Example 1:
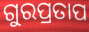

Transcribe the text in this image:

ଗୁରପ୍ରତାପ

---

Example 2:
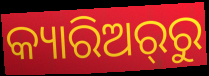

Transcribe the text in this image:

କ୍ୟାରିଅର୍‌ରୁ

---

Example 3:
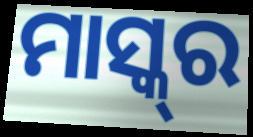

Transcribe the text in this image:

ମାସ୍କ୍‌ର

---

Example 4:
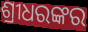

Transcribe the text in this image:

ଶ୍ରୀଧରଙ୍କର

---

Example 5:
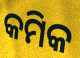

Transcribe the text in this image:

କମିକ